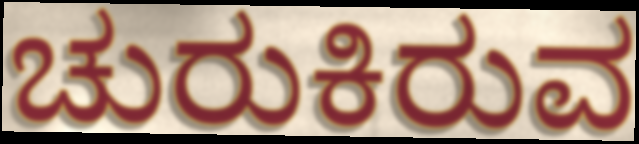
ಚುರುಕಿರುವ